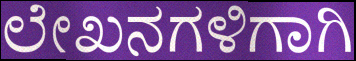
ಲೇಖನಗಳಿಗಾಗಿ